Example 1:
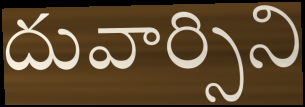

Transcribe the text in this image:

దువార్సిని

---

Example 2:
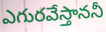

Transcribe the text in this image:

ఎగురవేస్తాననీ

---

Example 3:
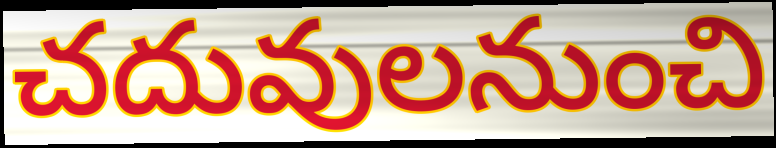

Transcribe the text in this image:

చదువులనుంచి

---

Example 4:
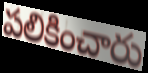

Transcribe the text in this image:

పలికించారు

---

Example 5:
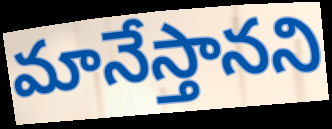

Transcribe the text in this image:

మానేస్తానని